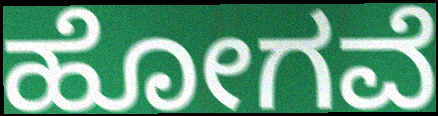
ಹೋಗವೆ